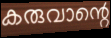
കരുവാന്റെ